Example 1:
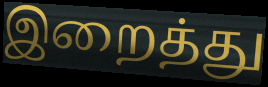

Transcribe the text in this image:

இறைத்து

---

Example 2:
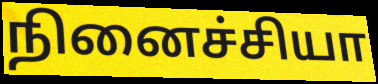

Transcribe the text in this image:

நினைச்சியா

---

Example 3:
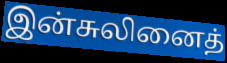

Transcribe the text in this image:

இன்சுலினைத்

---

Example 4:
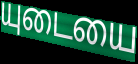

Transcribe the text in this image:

யுடையை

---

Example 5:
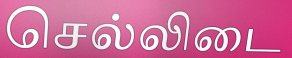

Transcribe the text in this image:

செல்லிடை